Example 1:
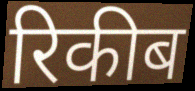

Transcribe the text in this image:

रिकीब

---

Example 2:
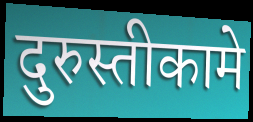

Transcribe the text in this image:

दुरुस्तीकामे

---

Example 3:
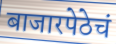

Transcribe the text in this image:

बाजारपेठेचं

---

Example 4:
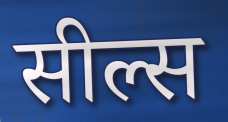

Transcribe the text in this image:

सील्स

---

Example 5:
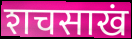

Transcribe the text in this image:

शचसाखं